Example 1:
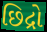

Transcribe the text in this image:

છિદ્રો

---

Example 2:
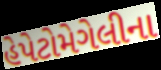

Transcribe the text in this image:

હેપેટોમેગેલીના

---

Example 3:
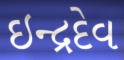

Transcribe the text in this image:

ઇન્દ્રદેવ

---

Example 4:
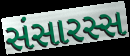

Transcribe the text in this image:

સંસારસ્સ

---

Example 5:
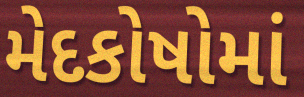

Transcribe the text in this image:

મેદકોષોમાં